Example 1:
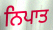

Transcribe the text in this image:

ਨਿਪਾਤ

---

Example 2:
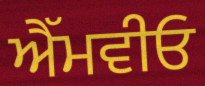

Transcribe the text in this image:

ਐੱਮਵੀਓ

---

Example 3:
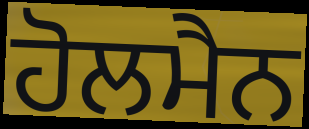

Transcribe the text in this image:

ਹੋਲਮੈਨ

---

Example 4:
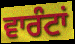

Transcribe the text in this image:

ਵਾਰੰਟਾਂ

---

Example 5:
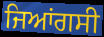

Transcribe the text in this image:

ਜਿਆਂਗਸੀ